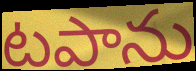
టపాను